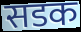
सडक